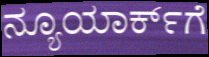
ನ್ಯೂಯಾರ್ಕ್‌ಗೆ